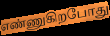
எண்ணுகிறபோது